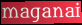
maganai